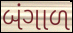
બંગાળ